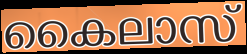
കൈലാസ്